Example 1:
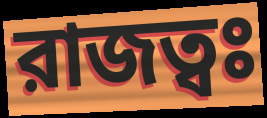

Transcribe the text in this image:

রাজত্বঃ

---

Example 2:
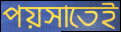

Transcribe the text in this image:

পয়সাতেই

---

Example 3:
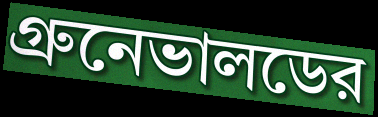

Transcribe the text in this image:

গ্রুনেভালডের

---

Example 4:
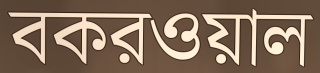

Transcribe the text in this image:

বকরওয়াল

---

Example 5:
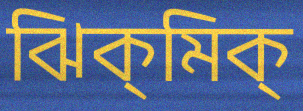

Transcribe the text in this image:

ঝিক্‌মিক্